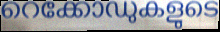
റെക്കോഡുകളുടെ